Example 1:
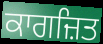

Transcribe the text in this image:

ਕਾਗਜ਼ਿਤ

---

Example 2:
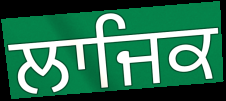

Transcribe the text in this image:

ਲਾਜਿਕ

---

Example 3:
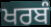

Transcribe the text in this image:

ਖਰਬੰ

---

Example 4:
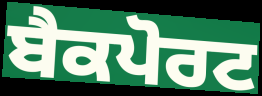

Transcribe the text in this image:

ਬੈਕਪੋਰਟ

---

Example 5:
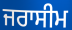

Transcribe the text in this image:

ਜਰਾਸੀਮ